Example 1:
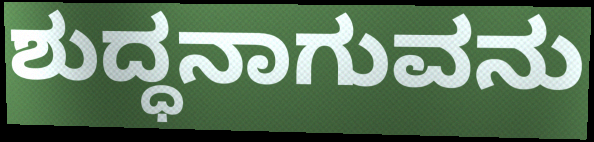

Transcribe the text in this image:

ಶುದ್ಧನಾಗುವನು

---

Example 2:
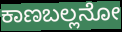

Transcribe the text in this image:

ಕಾಣಬಲ್ಲನೋ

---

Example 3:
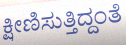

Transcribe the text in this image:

ಕ್ಷೀಣಿಸುತ್ತಿದ್ದಂತೆ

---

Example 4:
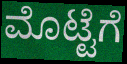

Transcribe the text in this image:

ಮೊಟ್ಟೆಗೆ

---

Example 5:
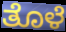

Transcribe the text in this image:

ತೊಳೆ